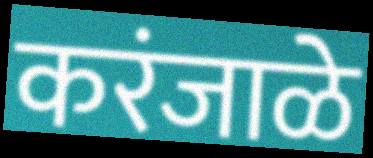
करंजाळे